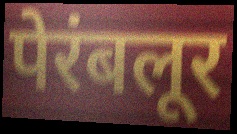
पेरंबलूर